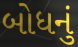
બોધનું